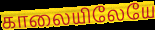
காலையிலேயே